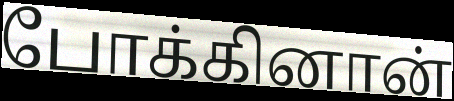
போக்கினான்